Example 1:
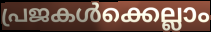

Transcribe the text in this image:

പ്രജകൾക്കെല്ലാം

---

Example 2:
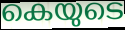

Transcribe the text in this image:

കെയുടെ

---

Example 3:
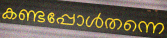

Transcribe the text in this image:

കണ്ടപ്പോൾതന്നെ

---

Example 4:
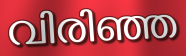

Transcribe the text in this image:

വിരിഞ്ഞ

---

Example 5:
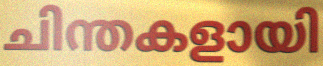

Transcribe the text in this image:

ചിന്തകളായി